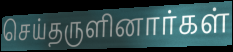
செய்தருளினார்கள்